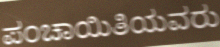
ಪಂಚಾಯಿತಿಯವರು